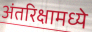
अंतरिक्षामध्ये